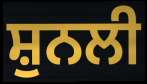
ਸ਼ੁਨਲੀ